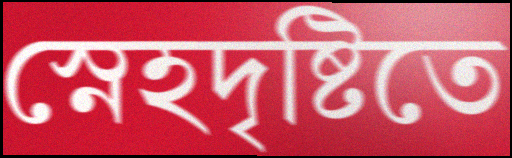
স্নেহদৃষ্টিতে